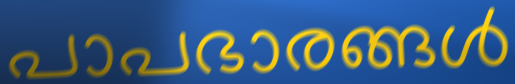
പാപഭാരങ്ങൾ